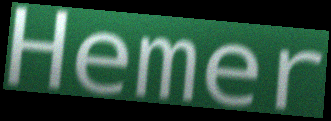
Hemer